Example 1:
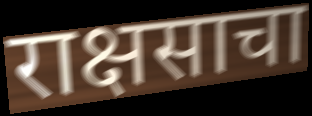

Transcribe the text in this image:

राक्षसाचा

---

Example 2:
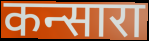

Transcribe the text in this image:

कन्सारा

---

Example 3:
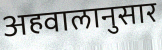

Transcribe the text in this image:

अहवालानुसार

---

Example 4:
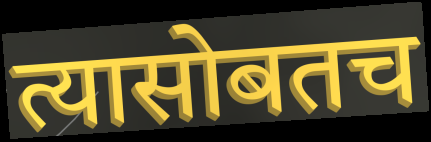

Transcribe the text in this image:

त्यासोबतच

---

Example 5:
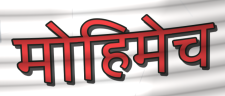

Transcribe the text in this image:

मोहिमेच